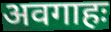
अवगाहः